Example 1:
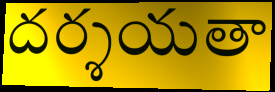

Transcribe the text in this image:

దర్శయతా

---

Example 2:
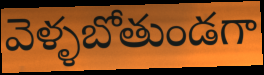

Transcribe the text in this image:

వెళ్ళబోతుండగా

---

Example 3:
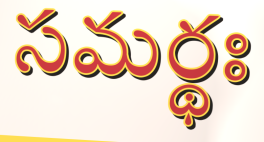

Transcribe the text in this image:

సమర్థః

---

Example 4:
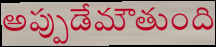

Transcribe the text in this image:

అప్పుడేమౌతుంది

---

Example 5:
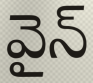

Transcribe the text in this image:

వైన్